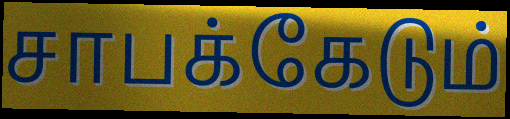
சாபக்கேடும்